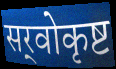
सर्वोकृष्ट